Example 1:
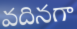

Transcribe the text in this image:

వదినగా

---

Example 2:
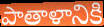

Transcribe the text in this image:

పాతాళానికి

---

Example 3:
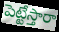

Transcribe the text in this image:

పెట్టేస్తారా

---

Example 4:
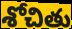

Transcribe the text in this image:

శోచితు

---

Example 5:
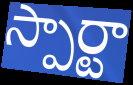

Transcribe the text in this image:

స్పార్టా